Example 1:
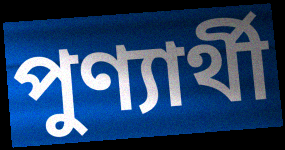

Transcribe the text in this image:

পুণ্যার্থী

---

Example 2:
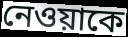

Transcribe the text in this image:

নেওয়াকে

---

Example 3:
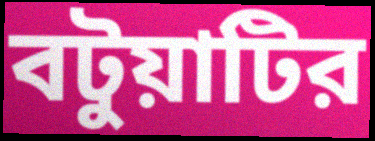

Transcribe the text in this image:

বটুয়াটির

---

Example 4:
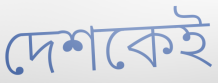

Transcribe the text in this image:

দেশকেই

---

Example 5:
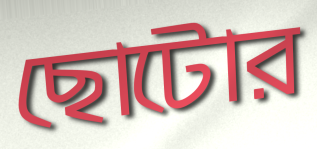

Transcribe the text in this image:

ছোটোর